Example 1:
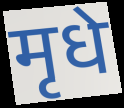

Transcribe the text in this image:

मृधे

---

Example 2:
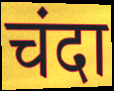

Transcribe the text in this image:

चंदा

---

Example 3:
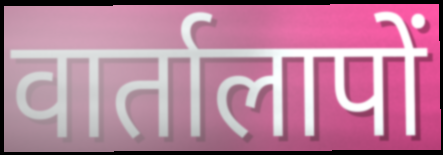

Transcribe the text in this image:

वार्तालापों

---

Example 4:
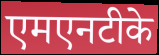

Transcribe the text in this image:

एमएनटीके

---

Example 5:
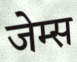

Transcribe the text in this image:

जेम्स